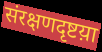
संरक्षणदृष्टय़ा